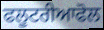
ਫਲੂਟਰੀਆਫੋਲ